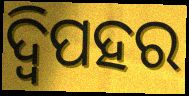
ଦ୍ୱିପହର